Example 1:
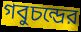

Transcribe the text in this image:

গবুচন্দ্রের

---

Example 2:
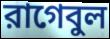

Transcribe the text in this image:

রাগেবুল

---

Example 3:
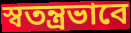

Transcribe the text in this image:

স্বতন্ত্রভাবে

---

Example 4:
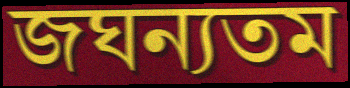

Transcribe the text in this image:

জঘন্যতম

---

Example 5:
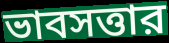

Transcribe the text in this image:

ভাবসত্তার